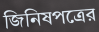
জিনিষপত্রের